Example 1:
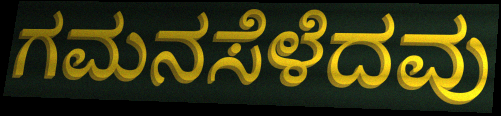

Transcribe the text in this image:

ಗಮನಸೆಳೆದವು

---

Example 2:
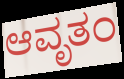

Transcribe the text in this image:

ಆವೃತಂ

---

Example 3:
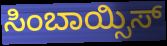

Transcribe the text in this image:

ಸಿಂಬಾಯ್ಸಿಸ್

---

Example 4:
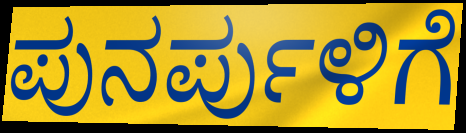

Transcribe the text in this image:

ಪುನರ್ಪುಳಿಗೆ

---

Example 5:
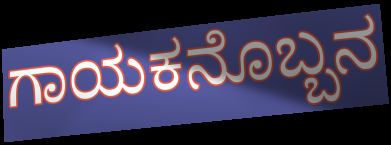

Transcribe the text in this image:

ಗಾಯಕನೊಬ್ಬನ